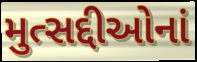
મુત્સદ્દીઓનાં